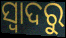
ସ୍ବାଦରୁ